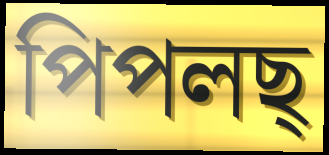
পিপলছ্